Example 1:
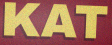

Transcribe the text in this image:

KAT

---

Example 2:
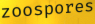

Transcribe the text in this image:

zoospores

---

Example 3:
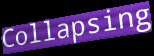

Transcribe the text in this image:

Collapsing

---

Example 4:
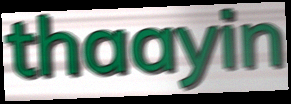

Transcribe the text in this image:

thaayin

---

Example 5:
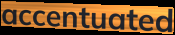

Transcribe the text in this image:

accentuated